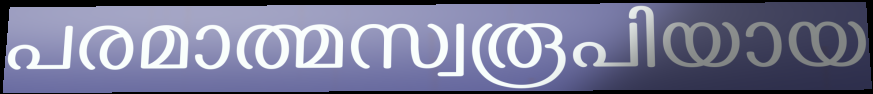
പരമാത്മസ്വരൂപിയായ